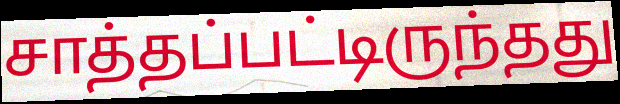
சாத்தப்பட்டிருந்தது